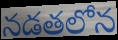
నడతలోన